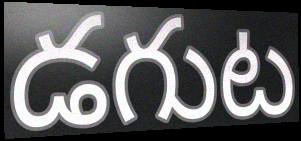
డగుట